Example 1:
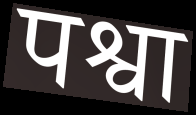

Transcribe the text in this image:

पश्वा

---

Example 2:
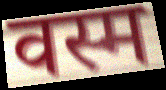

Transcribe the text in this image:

वस्म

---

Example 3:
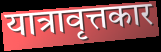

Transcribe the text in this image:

यात्रावृत्तकार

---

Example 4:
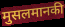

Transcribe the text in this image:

मुसलमानकी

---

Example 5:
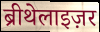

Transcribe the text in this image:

ब्रीथेलाइज़र